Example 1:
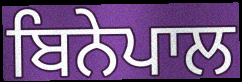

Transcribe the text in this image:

ਬਿਨੇਪਾਲ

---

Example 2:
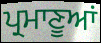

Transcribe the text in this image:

ਪ੍ਰਮਾਣੂਆਂ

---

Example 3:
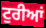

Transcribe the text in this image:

ਟੁਰੀਆਂ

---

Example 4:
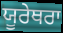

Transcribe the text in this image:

ਯੂਰੇਥਰਾ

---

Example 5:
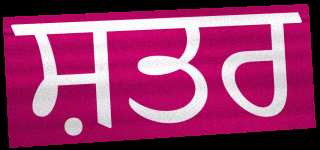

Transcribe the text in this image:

ਸ਼ਤਰ